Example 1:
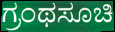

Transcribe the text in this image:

ಗ್ರಂಥಸೂಚಿ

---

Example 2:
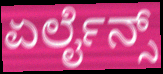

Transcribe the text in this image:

ಏರ್ಲೈನ್ಸ್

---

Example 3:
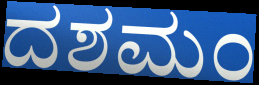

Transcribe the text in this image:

ದಶಮಂ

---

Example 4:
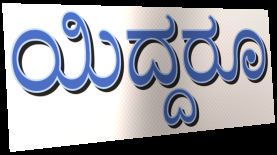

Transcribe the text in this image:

ಯಿದ್ದರೂ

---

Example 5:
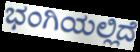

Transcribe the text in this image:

ಭಂಗಿಯಲ್ಲಿದೆ